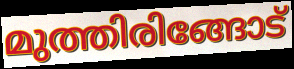
മുത്തിരിങ്ങോട്